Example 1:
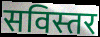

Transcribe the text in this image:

सविस्तर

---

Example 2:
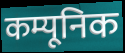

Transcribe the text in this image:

कम्यूनिक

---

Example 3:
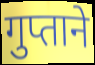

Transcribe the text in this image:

गुप्ताने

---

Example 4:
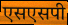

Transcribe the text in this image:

एसएसपी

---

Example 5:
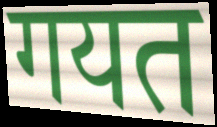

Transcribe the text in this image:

गयत